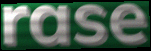
rase